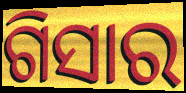
ଗିସାର